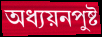
অধ্যয়নপুষ্ট